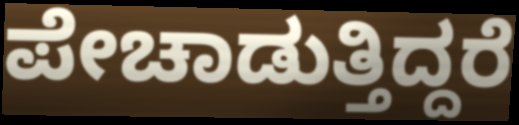
ಪೇಚಾಡುತ್ತಿದ್ದರೆ